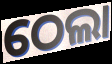
ଠେଲା